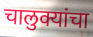
चालुक्यांचा